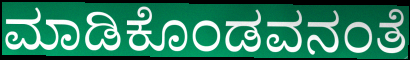
ಮಾಡಿಕೊಂಡವನಂತೆ